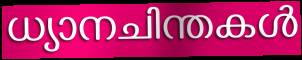
ധ്യാനചിന്തകൾ